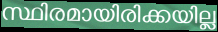
സ്ഥിരമായിരിക്കയില്ല